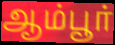
ஆம்பூர்